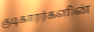
குடிகாரர்களின்